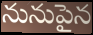
నునుపైన